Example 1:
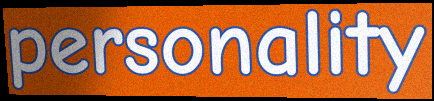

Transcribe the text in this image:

personality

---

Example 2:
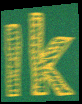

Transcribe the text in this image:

Ik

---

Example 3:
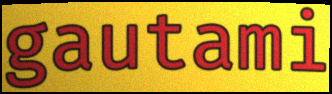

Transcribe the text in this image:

gautami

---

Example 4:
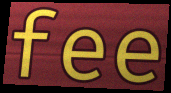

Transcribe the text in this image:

fee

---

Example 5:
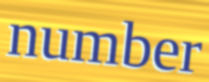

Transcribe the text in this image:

number